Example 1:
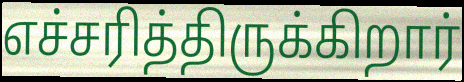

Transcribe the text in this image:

எச்சரித்திருக்கிறார்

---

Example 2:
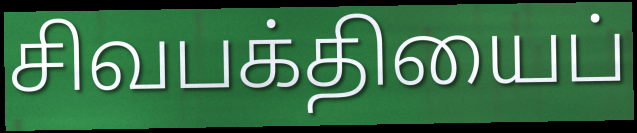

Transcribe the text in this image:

சிவபக்தியைப்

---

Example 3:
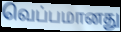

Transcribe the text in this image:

வெப்பமானது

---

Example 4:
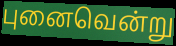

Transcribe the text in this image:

புனைவென்று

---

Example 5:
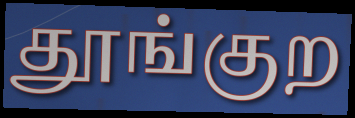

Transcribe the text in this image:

தூங்குற